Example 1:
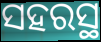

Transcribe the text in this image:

ସହରସ୍ଥ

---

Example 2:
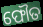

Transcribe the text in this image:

ଫୌତ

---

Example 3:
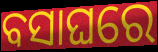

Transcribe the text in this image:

ବସାଘରେ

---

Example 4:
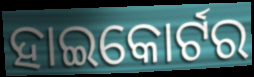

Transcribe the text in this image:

ହାଇକୋର୍ଟର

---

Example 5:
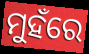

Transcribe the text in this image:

ମୁହଁରେ